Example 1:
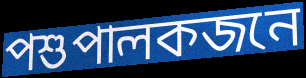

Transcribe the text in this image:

পশুপালকজনে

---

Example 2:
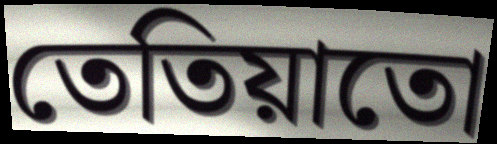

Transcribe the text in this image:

তেতিয়াতো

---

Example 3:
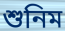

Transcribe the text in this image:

শুনিম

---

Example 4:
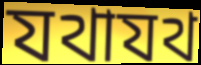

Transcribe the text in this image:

যথাযথ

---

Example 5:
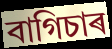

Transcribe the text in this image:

বাগিচাৰ